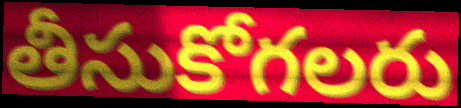
తీసుకోగలరు